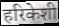
हरिकेशी